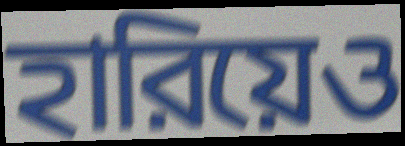
হারিয়েও